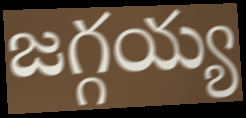
జగ్గయ్య